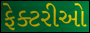
ફેક્ટરીઓ